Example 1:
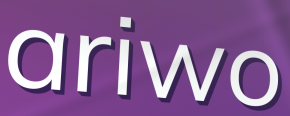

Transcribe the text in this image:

ariwo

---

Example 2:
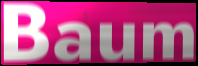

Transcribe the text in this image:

Baum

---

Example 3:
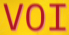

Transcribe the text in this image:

VOI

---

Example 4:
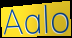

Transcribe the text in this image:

Aalo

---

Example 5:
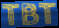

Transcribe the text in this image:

TBT